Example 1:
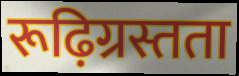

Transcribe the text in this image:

रूढ़िग्रस्तता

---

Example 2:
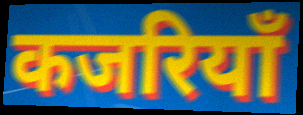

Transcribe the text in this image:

कजरियाँ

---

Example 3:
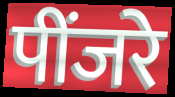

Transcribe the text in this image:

पींजरे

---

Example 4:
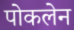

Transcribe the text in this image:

पोकलेन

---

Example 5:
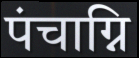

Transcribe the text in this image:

पंचाग्नि